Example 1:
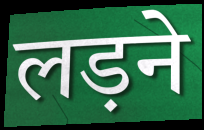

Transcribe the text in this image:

लड़ने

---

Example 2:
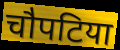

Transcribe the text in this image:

चौपटिया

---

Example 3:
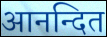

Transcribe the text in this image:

आनन्दित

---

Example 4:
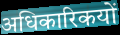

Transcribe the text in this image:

अधिकारिकयों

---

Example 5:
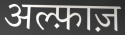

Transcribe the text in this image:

अल्फ़ाज़